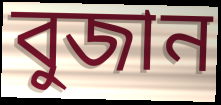
বুজান